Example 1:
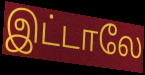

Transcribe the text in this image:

இட்டாலே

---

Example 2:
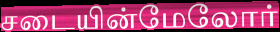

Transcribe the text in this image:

சடையின்மேலோர்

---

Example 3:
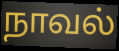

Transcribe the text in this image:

நாவல்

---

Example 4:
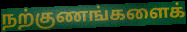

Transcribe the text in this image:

நற்குணங்களைக்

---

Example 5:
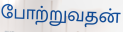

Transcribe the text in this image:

போற்றுவதன்